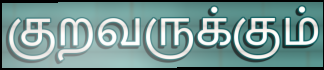
குறவருக்கும்